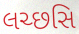
લચ્છસિ